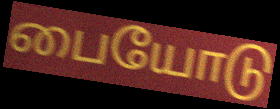
பையோடு